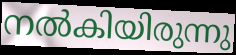
നൽകിയിരുന്നു